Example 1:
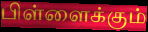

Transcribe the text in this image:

பிள்ளைக்கும்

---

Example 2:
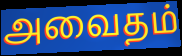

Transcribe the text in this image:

அவைதம்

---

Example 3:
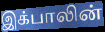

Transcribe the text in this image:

இக்பாலின்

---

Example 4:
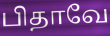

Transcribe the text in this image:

பிதாவே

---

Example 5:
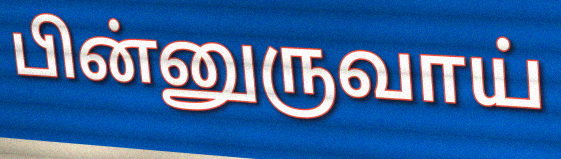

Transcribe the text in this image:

பின்னுருவாய்